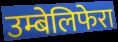
उम्बेलिफेरा